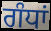
ਗੰਧਾਂ